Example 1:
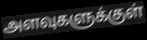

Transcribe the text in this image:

அளவுகளுக்குள்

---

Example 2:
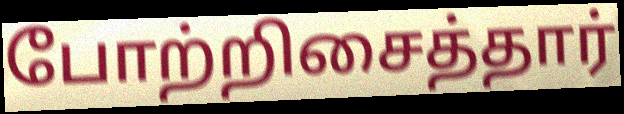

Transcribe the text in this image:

போற்றிசைத்தார்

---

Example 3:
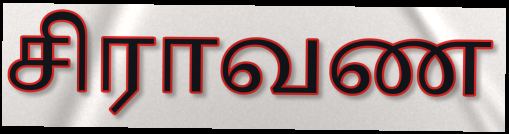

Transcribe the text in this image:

சிராவண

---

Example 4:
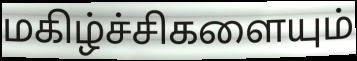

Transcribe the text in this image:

மகிழ்ச்சிகளையும்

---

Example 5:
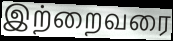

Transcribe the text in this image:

இற்றைவரை